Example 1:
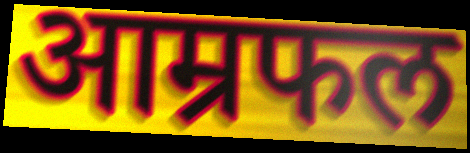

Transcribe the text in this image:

आम्रफल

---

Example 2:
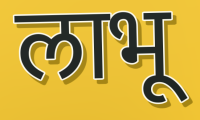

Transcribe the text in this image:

लाभू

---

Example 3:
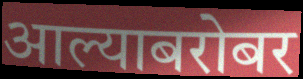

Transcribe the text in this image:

आल्याबरोबर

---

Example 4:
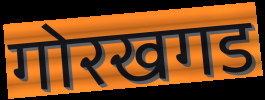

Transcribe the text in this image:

गोरखगड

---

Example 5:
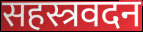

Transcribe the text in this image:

सहस्त्रवदन